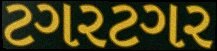
ટગરટગર